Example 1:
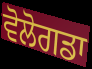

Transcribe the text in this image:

ਵੋਲੋਗਡਾ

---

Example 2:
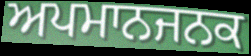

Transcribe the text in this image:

ਅਪਮਾਨਜਨਕ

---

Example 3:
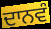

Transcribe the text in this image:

ਦਾਨਵੰ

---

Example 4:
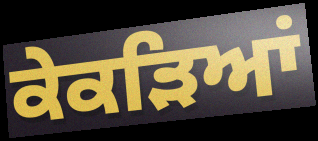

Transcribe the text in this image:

ਕੇਕੜਿਆਂ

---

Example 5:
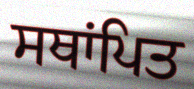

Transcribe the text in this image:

ਸਥਾਂਪਿਤ